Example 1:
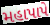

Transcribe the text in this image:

મહાપાપે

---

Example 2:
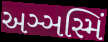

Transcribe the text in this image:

અઞ્ઞસ્મિં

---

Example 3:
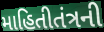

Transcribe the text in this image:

માહિતીતંત્રની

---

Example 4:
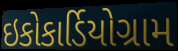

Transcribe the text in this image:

ઇકોકાર્ડિયોગ્રામ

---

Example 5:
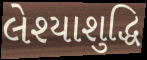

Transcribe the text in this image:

લેશ્યાશુદ્ધિ